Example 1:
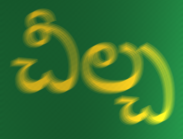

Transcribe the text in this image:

చీల్చ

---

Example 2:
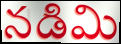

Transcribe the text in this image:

నడిమి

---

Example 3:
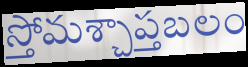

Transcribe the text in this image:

స్తోమశ్చాప్తబలం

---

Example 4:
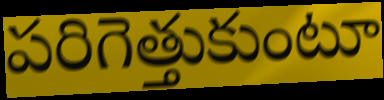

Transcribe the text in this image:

పరిగెత్తుకుంటూ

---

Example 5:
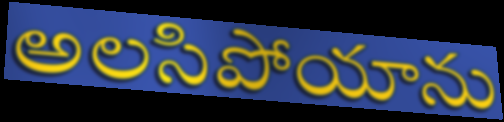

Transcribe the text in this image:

అలసిపోయాను